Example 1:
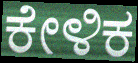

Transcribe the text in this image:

ಕೇಳಿಕ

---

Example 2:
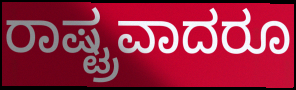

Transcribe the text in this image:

ರಾಷ್ಟ್ರವಾದರೂ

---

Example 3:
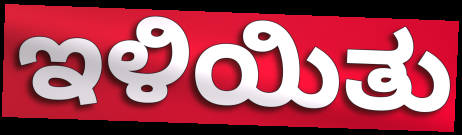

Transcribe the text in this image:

ಇಳಿಯಿತು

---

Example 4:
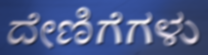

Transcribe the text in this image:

ದೇಣಿಗೆಗಳು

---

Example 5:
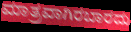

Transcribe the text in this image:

ಮಾತ್ರವಾಗಿರಬಾರದು